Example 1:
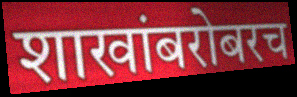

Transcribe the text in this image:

शाखांबरोबरच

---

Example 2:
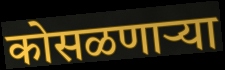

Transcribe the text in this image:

कोसळणार्‍या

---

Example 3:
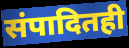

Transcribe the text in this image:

संपादितही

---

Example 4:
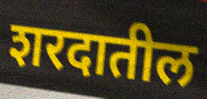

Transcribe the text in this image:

शरदातील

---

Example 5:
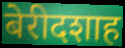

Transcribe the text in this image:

बेरीदशाह